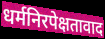
धर्मनिरपेक्षतावाद